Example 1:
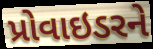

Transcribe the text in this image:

પ્રોવાઇડરને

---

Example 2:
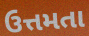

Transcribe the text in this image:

ઉત્તમતા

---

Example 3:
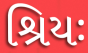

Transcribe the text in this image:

શ્રિયઃ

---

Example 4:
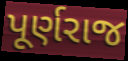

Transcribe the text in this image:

પૂર્ણરાજ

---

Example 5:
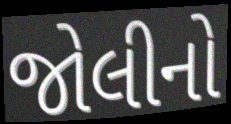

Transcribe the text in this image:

જોલીનો